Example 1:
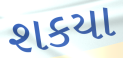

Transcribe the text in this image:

શકયા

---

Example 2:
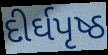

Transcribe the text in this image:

દીર્ઘપૃષ્ઠ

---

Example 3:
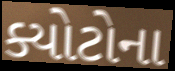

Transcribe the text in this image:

ક્યોટોના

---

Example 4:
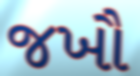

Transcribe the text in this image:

જખૌ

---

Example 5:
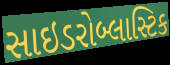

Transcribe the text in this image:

સાઇડરોબ્લાસ્ટિક